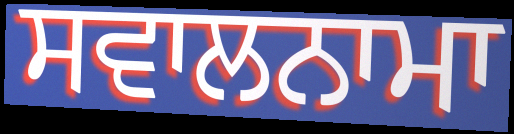
ਸਵਾਲਨਾਮਾ